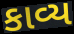
કાવ્ય